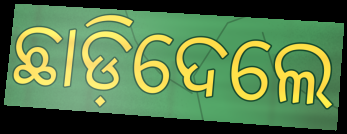
ଛାଡ଼ିଦେଲେ